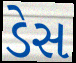
ડેસ